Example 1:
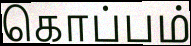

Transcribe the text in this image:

கொப்பம்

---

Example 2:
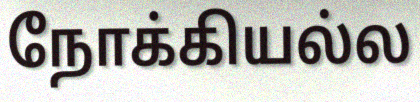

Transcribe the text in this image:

நோக்கியல்ல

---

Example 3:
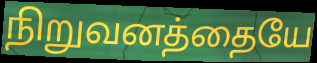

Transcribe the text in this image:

நிறுவனத்தையே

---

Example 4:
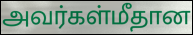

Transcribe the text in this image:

அவர்கள்மீதான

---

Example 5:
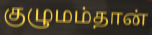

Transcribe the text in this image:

குழுமம்தான்